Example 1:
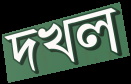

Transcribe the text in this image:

দখল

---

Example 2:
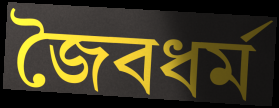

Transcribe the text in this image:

জৈবধর্ম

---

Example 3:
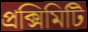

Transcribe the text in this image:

প্রক্সিমিটি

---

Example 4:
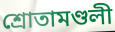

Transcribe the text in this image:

শ্রোতামণ্ডলী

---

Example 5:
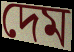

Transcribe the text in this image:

দেম